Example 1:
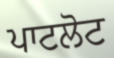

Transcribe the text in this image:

ਪਾਟਲੋਟ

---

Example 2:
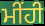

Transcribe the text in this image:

ਮੀਂਹੀ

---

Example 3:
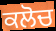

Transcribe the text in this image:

ਕਲੋਚ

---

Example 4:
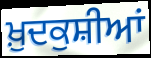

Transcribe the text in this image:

ਖ਼ੁਦਕੁਸ਼ੀਆਂ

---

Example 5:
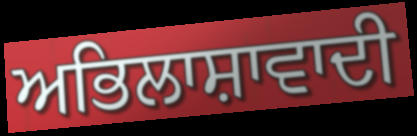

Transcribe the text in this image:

ਅਭਿਲਾਸ਼ਾਵਾਦੀ